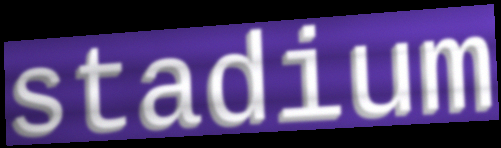
stadium